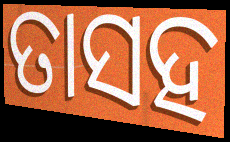
ତାସହ